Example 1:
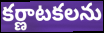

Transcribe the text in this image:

కర్ణాటకలను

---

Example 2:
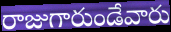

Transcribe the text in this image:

రాజుగారుండేవారు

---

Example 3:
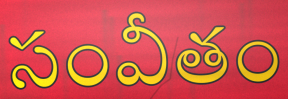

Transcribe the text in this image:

సంవీతం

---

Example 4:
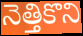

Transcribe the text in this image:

నెత్తికొని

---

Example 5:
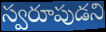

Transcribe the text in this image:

స్వరూపుడని